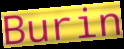
Burin